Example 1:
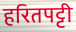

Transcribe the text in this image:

हरितपट्टी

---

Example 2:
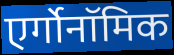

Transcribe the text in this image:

एर्गोनॉमिक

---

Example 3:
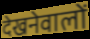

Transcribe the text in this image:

देखनेवालों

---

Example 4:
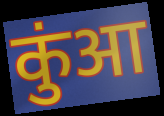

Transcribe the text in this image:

कुंआ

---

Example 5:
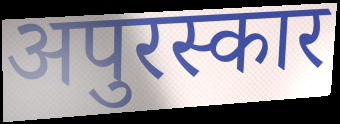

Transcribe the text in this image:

अपुरस्कार